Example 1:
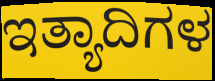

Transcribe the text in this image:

ಇತ್ಯಾದಿಗಳ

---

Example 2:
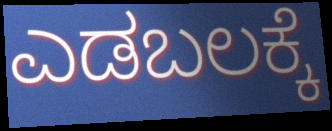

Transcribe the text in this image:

ಎಡಬಲಕ್ಕೆ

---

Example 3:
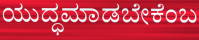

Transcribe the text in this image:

ಯುದ್ಧಮಾಡಬೇಕೆಂಬ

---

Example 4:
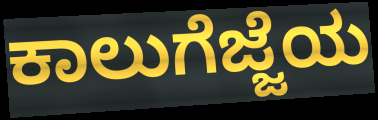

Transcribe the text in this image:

ಕಾಲುಗೆಜ್ಜೆಯ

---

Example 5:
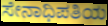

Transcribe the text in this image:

ಸೇನಾಧಿಪತಿಯ